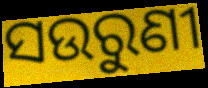
ସଉରୁଣୀ